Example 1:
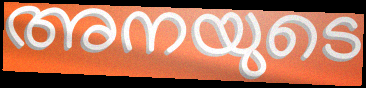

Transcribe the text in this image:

അനയുടെ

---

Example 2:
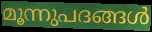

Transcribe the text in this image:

മൂന്നുപദങ്ങൾ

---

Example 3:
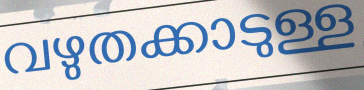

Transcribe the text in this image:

വഴുതക്കാടുള്ള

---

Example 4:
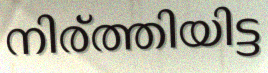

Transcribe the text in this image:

നിര്ത്തിയിട്ട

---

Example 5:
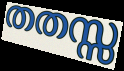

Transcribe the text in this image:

തതസ്സ